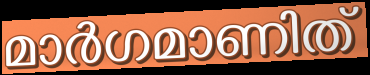
മാർഗമാണിത്